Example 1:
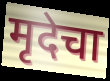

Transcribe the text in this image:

मृदेचा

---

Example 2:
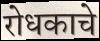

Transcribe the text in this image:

रोधकाचे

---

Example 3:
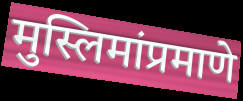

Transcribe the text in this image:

मुस्लिमांप्रमाणे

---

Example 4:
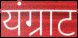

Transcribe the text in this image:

यंग्राट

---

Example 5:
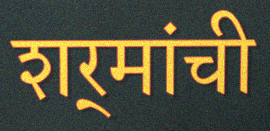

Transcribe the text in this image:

शर्मांची